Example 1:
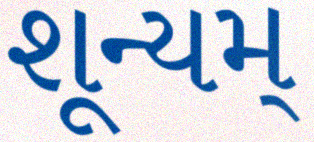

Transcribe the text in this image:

શૂન્યમ્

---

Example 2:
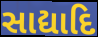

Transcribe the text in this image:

સાદ્યાદિ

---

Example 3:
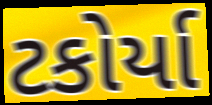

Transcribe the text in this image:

ટકોર્યા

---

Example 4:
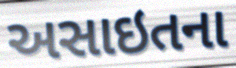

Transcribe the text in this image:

અસાઇતના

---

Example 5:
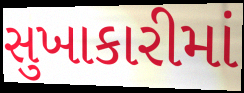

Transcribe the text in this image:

સુખાકારીમાં